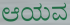
ಆಯವ